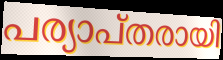
പര്യാപ്തരായി